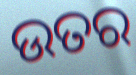
ଉତର